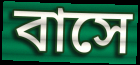
বাসে